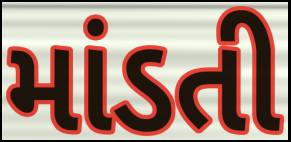
માંડતી